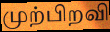
முற்பிறவி